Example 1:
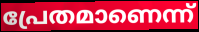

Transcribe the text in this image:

പ്രേതമാണെന്ന്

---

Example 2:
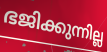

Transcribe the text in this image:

ഭജിക്കുന്നില്ല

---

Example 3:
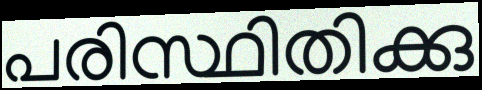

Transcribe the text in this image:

പരിസ്ഥിതിക്കു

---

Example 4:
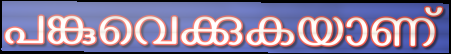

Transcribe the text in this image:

പങ്കുവെക്കുകയാണ്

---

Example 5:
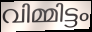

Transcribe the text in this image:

വിമ്മിട്ടം